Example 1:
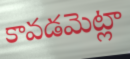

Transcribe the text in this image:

కావడమెట్లా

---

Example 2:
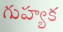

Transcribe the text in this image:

గుహ్యక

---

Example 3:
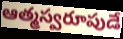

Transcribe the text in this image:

ఆత్మస్వరూపుడే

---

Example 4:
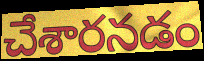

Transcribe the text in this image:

చేశారనడం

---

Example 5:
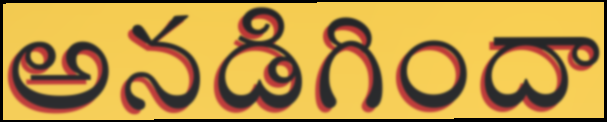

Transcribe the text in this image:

అనడిగిందా